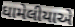
ધામેલીયાએ